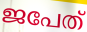
ജപേത്